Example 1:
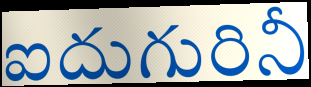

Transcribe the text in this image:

ఐదుగురినీ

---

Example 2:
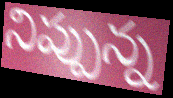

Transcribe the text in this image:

నిప్పున్న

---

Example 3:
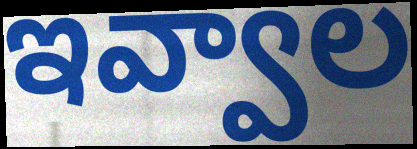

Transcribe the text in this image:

ఇవ్వాల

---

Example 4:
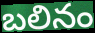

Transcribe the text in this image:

బలినం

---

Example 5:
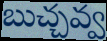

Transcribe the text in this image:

బుచ్చవ్వ